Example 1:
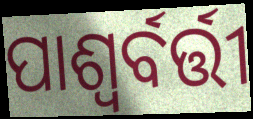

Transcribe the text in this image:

ପାଶ୍ୱର୍ବର୍ତ୍ତୀ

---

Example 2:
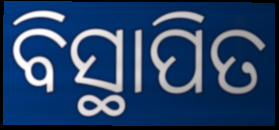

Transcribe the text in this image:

ବିସ୍ଥାପିତ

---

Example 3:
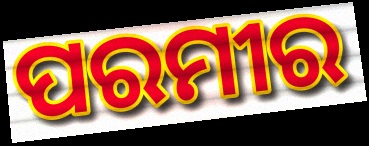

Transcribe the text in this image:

ପରମୀର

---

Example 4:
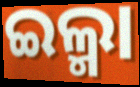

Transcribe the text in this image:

ଇଲ୍ମା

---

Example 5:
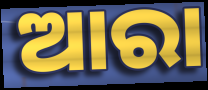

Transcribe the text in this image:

ଆରା